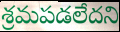
శ్రమపడలేదని